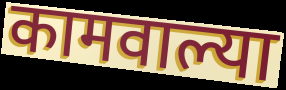
कामवाल्या